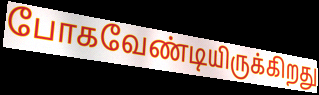
போகவேண்டியிருக்கிறது